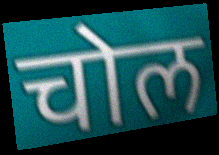
चोल